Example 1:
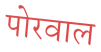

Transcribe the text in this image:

पोरवाल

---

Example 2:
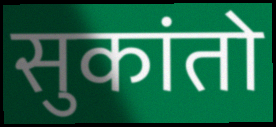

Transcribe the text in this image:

सुकांतो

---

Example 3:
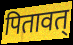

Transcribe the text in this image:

पितावत्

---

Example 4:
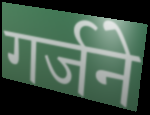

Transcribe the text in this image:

गर्जने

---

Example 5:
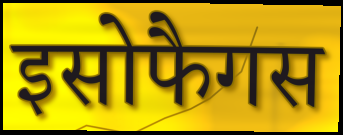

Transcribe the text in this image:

इसोफैगस